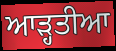
ਆੜ੍ਹਤੀਆ